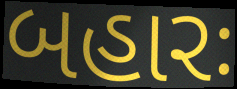
બહારઃ